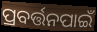
ପ୍ରବର୍ତ୍ତନପାଇଁ